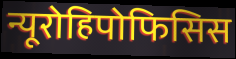
न्यूरोहिपोफिसिस